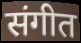
संगीत